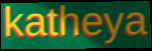
katheya